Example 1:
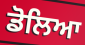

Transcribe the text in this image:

ਡੋਲਿਆ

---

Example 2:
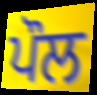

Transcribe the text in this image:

ਪੌਲ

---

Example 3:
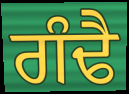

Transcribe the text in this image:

ਗੰਢੈ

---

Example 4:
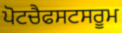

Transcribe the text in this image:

ਪੋਟਚੈਫਸਟਸਰੂਮ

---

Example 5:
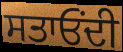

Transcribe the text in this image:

ਸਤਾਓਂਦੀ